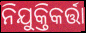
ନିଯୁକ୍ତିକର୍ତ୍ତା